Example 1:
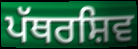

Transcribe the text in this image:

ਪੱਥਰਸ਼ਿਵ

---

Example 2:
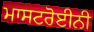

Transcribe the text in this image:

ਮਾਸਟਰੋਈਨੀ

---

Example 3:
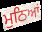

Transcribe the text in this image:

ਮੁਠਿਆਂ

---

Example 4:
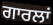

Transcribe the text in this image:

ਗਾਰਲਾਂ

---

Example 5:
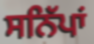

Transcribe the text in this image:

ਸਨਿੱਪਾਂ